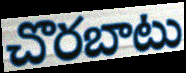
చొరబాటు